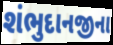
શંભુદાનજીના